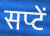
सप्टें